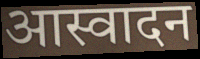
आस्वादन